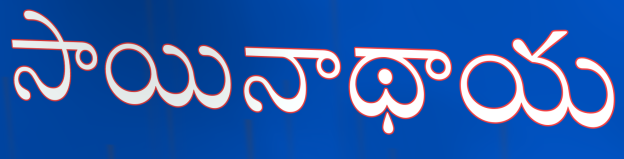
సాయినాథాయ